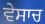
ਵੇਸਾਚ